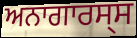
ਅਨਾਗਾਰਸ੍ਸ